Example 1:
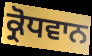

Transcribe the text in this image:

ਕ੍ਰੋਧਵਾਨ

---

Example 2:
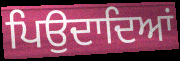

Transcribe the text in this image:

ਪਿਉਦਾਦਿਆਂ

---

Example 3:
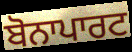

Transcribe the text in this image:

ਬੋਨਾਪਾਰਟ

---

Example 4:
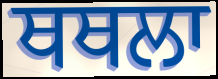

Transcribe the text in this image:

ਥਥਲਾ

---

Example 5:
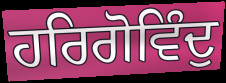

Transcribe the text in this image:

ਹਰਿਗੋਵਿੰਦੁ